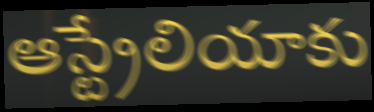
ఆస్ట్రేలియాకు